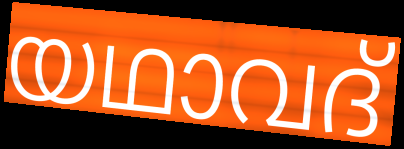
യഥാവദ്